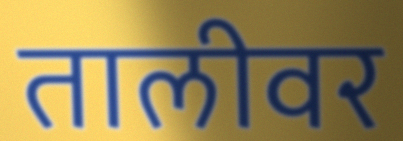
तालीवर